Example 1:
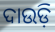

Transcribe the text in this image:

ଦାଉଡ଼ି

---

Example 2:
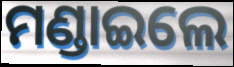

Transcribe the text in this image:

ମଣ୍ଡାଇଲେ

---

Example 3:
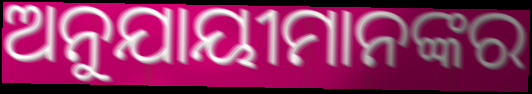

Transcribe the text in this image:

ଅନୁଯାୟୀମାନଙ୍କର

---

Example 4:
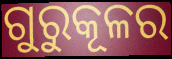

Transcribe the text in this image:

ଗୁରୁକୂଳର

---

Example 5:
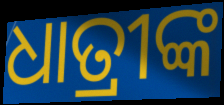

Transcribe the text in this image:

ଧାତ୍ରୀଙ୍କ